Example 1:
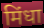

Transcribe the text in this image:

मिंधा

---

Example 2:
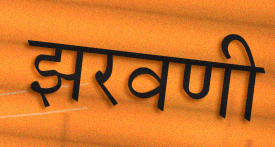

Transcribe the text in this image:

झरवणी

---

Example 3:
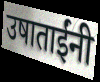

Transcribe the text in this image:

उषाताईंनी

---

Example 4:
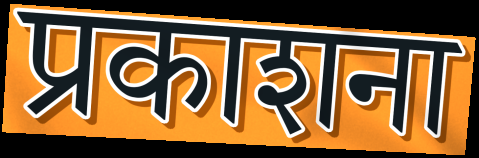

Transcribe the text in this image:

प्रकाशना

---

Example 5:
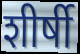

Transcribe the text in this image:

शीर्षी